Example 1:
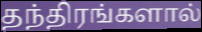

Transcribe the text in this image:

தந்திரங்களால்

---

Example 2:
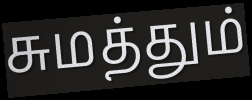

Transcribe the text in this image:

சுமத்தும்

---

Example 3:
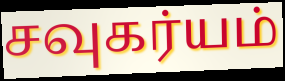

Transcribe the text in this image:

சவுகர்யம்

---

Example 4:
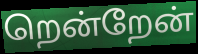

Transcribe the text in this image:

றென்றேன்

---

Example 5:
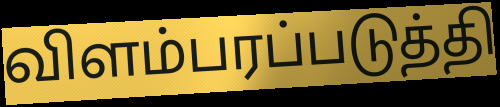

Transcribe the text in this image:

விளம்பரப்படுத்தி